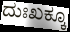
ದುಃಖಕ್ಕೂ